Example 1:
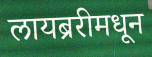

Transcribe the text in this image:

लायब्ररीमधून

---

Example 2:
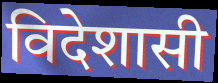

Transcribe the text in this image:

विदेशासी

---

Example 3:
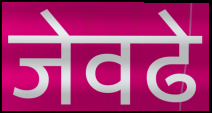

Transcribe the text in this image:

जेवढे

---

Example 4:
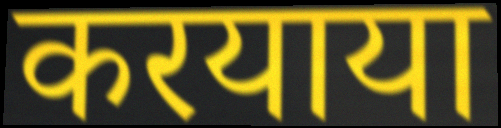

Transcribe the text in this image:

करयाया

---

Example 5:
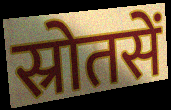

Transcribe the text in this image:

स्रोतसें